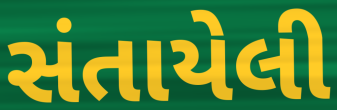
સંતાયેલી